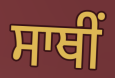
ਸਾਥੀਂ